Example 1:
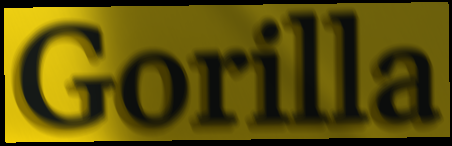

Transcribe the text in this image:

Gorilla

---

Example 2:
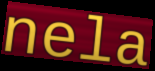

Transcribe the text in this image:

nela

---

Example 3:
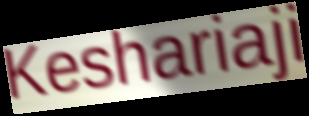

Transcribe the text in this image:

Keshariaji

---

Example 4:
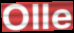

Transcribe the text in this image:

Olle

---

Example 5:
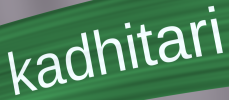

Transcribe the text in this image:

kadhitari